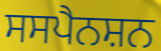
ਸਸਪੈਨਸ਼ਨ